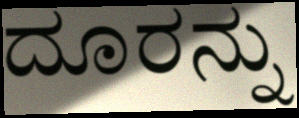
ದೂರನ್ನು